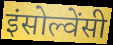
इंसोल्वेंसी